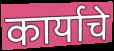
कार्याचे